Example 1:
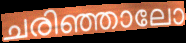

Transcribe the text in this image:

ചരിഞ്ഞാലോ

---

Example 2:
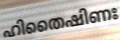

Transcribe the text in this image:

ഹിതൈഷിണഃ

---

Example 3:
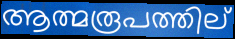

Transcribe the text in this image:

ആത്മരൂപത്തില്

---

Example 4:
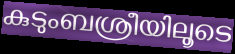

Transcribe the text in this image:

കുടുംബശ്രീയിലൂടെ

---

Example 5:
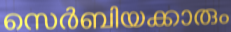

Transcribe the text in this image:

സെർബിയക്കാരും